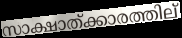
സാക്ഷാത്ക്കാരത്തില്